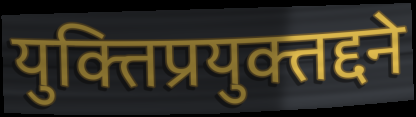
युक्तिप्रयुक्तद्दने